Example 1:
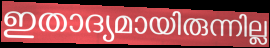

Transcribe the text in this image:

ഇതാദ്യമായിരുന്നില്ല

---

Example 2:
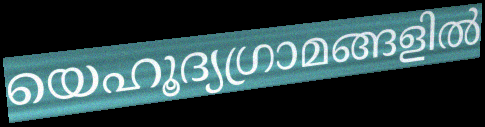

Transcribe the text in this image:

യെഹൂദ്യഗ്രാമങ്ങളിൽ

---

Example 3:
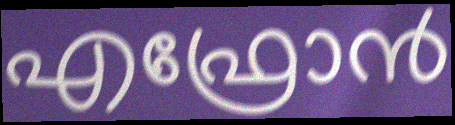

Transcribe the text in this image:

എഫ്രോൻ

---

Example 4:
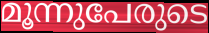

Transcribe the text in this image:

മൂന്നുപേരുടെ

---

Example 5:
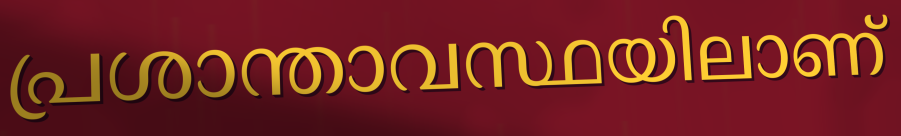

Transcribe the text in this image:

പ്രശാന്താവസ്ഥയിലാണ്